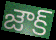
జౌక్